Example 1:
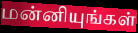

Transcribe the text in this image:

மன்னியுங்கள்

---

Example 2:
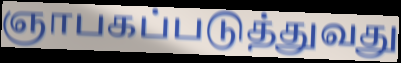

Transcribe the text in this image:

ஞாபகப்படுத்துவது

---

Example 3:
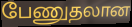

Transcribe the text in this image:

பேணுதலான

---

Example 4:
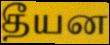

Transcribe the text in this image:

தீயன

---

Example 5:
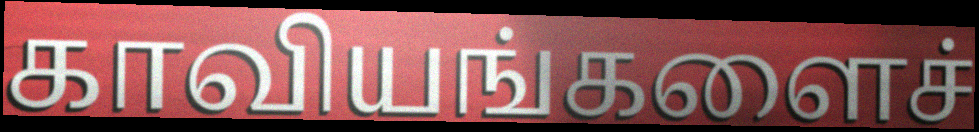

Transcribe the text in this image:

காவியங்களைச்